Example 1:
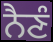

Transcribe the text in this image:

ਨੈਣੰ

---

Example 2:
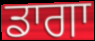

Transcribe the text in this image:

ਡਾਗਾ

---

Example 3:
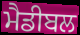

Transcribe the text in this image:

ਮੈਡੀਬਲ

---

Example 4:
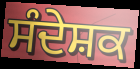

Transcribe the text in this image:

ਸੰਦੇਸ਼ਕ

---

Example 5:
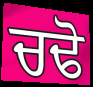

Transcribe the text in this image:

ਚਢੋ